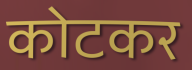
कोटकर